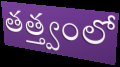
తత్త్వంలో